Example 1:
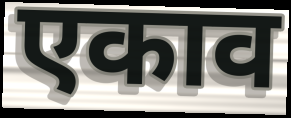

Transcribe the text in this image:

एकाव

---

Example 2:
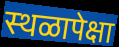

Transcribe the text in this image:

स्थळापेक्षा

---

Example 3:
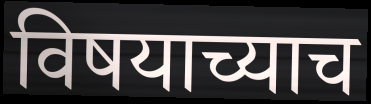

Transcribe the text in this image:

विषयाच्याच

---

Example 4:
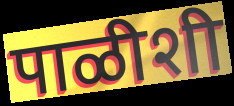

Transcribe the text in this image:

पाळीशी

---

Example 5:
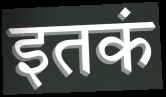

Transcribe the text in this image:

इतकं